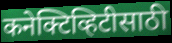
कनेक्टिव्हिटीसाठी